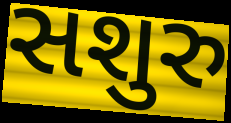
સશુરુ